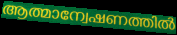
ആത്മാന്വേഷണത്തിൽ